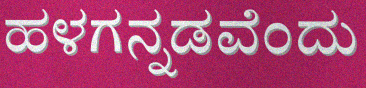
ಹಳಗನ್ನಡವೆಂದು